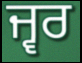
ਜ੍ਵਰ